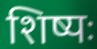
शिष्यः